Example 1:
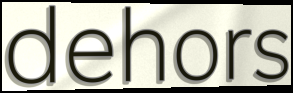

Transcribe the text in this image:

dehors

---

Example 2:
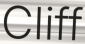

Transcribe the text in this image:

Cliff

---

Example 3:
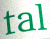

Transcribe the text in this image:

tal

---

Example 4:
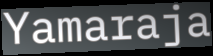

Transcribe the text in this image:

Yamaraja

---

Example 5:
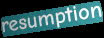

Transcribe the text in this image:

resumption